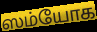
ஸம்யோக